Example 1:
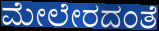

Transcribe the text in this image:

ಮೇಲೇರದಂತೆ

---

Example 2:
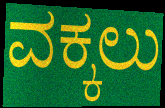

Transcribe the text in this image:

ವಕ್ಕಲು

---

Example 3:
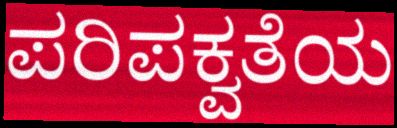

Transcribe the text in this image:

ಪರಿಪಕ್ವತೆಯ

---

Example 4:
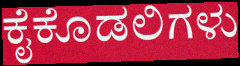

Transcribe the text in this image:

ಕೈಕೊಡಲಿಗಳು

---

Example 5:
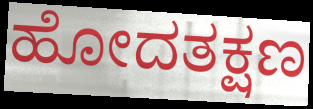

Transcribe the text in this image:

ಹೋದತಕ್ಷಣ